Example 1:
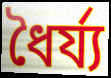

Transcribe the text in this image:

ধৈৰ্য্য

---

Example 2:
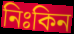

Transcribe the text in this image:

নিঃকিন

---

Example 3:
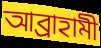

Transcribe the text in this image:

আব্ৰাহামী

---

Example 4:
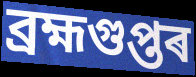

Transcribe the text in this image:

ব্ৰহ্মগুপ্তৰ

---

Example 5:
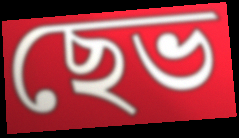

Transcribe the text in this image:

ছেভ